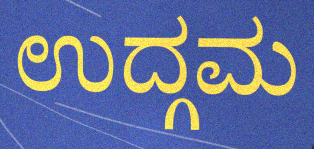
ಉದ್ಗಮ